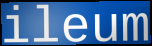
ileum